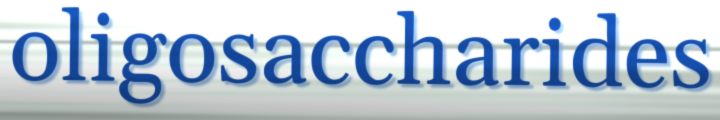
oligosaccharides